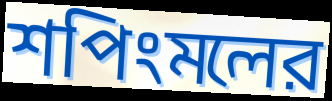
শপিংমলের